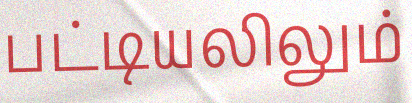
பட்டியலிலும்